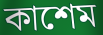
কাশেম